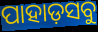
ପାହାଡ଼ସବୁ